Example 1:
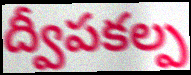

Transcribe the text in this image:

ద్వీపకల్ప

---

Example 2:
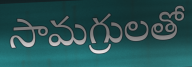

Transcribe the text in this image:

సామగ్రులతో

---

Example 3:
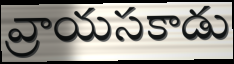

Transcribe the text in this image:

వ్రాయసకాడు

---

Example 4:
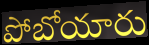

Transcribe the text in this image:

పోబోయారు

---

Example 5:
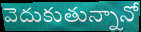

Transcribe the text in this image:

వెదుకుతున్నానో